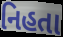
નિહતા